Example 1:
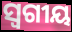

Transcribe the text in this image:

ସ୍ୱଗୀୟ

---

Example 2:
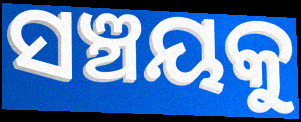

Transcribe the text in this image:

ସଞ୍ଚୟକୁ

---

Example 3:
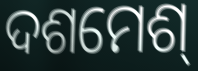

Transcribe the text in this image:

ଦଶମେଶ୍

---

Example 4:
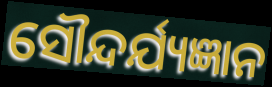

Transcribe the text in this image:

ସୌନ୍ଦର୍ଯ୍ୟଜ୍ଞାନ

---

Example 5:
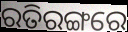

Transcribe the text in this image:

ରତିରଙ୍ଗରେ